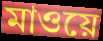
মাওয়ে